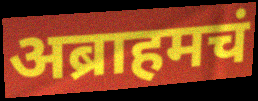
अब्राहमचं